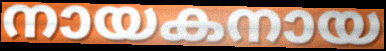
നായകനായ